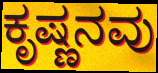
ಕೃಷ್ಣನವು